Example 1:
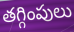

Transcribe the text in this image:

తగ్గింపులు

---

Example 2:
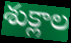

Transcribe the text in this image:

శుక్లాల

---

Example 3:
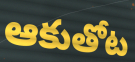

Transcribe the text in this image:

ఆకుతోట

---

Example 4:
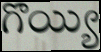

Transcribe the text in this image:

గొయ్యి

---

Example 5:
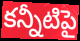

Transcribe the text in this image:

కన్నీటిపై